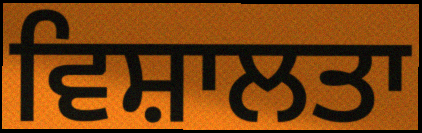
ਵਿਸ਼ਾਲਤਾ